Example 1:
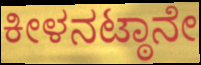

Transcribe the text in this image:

ಕೀಳನಟ್ಠಾನೇ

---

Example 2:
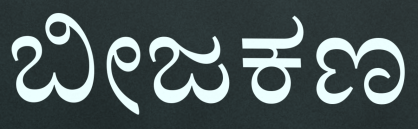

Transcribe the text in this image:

ಬೀಜಕಣ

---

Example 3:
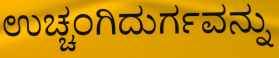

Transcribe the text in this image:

ಉಚ್ಚಂಗಿದುರ್ಗವನ್ನು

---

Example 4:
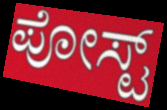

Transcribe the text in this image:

ಪೋಸ್ಟ್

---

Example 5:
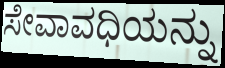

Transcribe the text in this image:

ಸೇವಾವಧಿಯನ್ನು